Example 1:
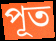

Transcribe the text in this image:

পূত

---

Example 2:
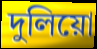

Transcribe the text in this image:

দুলিয়ো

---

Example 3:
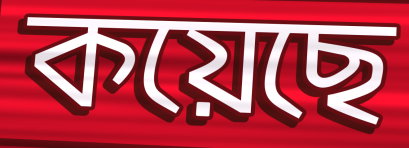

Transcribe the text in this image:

কয়েছে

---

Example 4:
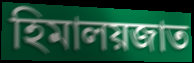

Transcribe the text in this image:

হিমালয়জাত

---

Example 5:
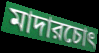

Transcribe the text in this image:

মাদারচোৎ